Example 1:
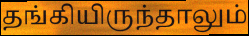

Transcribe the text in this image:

தங்கியிருந்தாலும்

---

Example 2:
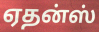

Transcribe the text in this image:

ஏதன்ஸ்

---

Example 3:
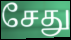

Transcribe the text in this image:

சேது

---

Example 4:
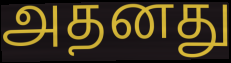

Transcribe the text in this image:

அதனது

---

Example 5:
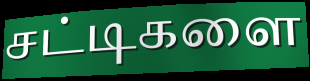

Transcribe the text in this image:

சட்டிகளை